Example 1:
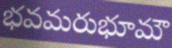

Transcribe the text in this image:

భవమరుభూమౌ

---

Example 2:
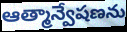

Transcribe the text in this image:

ఆత్మాన్వేషణను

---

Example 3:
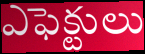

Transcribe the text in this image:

ఎఫెక్టులు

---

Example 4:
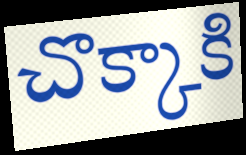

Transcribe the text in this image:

చొక్కాకి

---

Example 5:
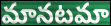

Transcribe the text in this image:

మానటమా